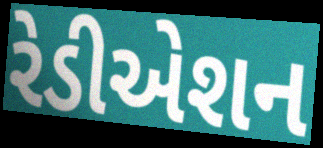
રેડીએશન